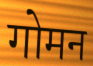
गोमन